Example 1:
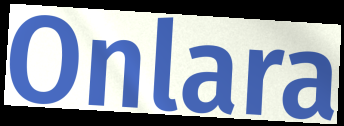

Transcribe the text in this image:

Onlara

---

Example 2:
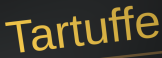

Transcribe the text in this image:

Tartuffe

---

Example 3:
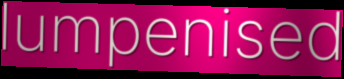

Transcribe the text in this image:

lumpenised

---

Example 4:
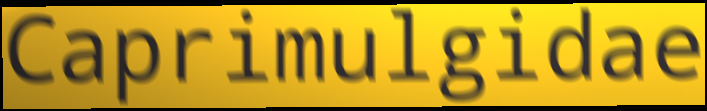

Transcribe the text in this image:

Caprimulgidae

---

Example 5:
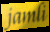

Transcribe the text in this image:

jamli